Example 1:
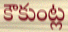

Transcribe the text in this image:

కౌకుంట్ల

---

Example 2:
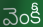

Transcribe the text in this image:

వెంకీ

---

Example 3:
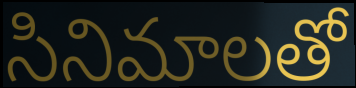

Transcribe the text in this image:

సినిమాలతో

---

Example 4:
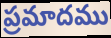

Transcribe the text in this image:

ప్రమాదము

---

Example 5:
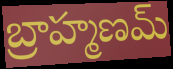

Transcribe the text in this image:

బ్రాహ్మణమ్